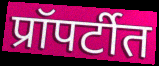
प्रॉपर्टीत